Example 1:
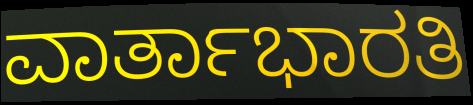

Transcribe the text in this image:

ವಾರ್ತಾಭಾರತಿ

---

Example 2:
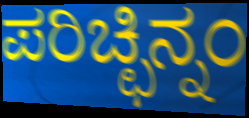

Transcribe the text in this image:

ಪರಿಚ್ಛಿನ್ನಂ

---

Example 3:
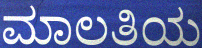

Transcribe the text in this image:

ಮಾಲತಿಯ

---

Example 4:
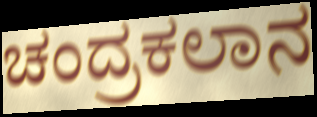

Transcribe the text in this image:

ಚಂದ್ರಕಲಾನ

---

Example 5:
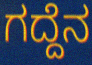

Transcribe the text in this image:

ಗದ್ದೆನ